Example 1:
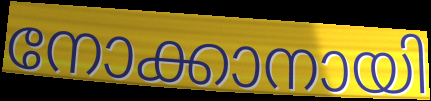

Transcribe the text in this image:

നോക്കാനായി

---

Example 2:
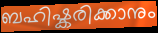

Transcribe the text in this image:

ബഹിഷ്കരിക്കാനും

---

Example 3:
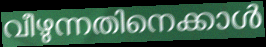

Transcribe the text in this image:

വീഴുന്നതിനെക്കാൾ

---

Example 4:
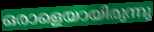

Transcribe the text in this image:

ഒരാളെയായിരുന്നു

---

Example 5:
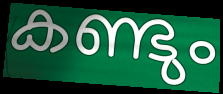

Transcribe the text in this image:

കണ്ടും